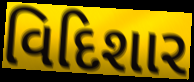
વિદિશાર